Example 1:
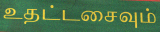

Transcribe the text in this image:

உதட்டசைவும்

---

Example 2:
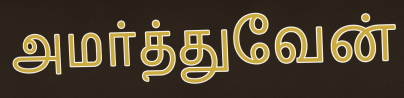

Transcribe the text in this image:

அமர்த்துவேன்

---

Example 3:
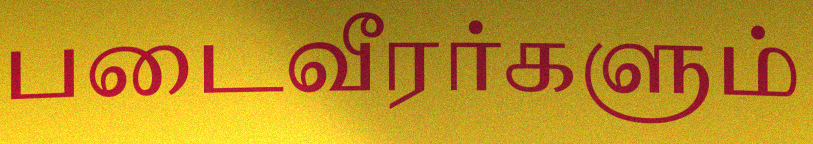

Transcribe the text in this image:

படைவீரர்களும்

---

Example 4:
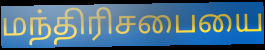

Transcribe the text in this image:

மந்திரிசபையை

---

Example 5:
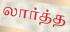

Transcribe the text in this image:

லார்த்த